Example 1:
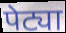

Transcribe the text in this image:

पेट्या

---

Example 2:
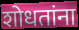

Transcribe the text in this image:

शोधतांना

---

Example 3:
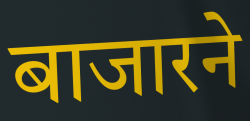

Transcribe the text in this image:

बाजारने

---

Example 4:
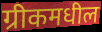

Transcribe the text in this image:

ग्रीकमधील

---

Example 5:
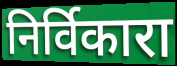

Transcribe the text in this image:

निर्विकारा